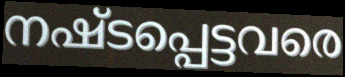
നഷ്ടപ്പെട്ടവരെ